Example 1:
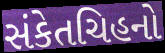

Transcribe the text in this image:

સંકેતચિહનો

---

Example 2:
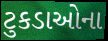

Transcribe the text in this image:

ટુકડાઓના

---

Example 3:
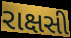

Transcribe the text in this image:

રાક્ષસી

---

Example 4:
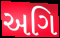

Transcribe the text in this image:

અગિ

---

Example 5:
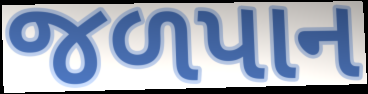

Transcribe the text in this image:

જળપાન